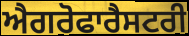
ਐਗਰੋਫਾਰੈਸਟਰੀ